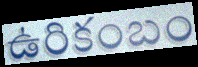
ఉరికంబం